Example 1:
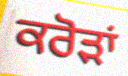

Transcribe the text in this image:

ਕਰੋਡ਼ਾਂ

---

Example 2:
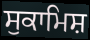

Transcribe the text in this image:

ਸੁਕਾਮਿਸ਼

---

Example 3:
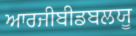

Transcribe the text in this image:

ਆਰਜੀਬੀਡਬਲਯੂ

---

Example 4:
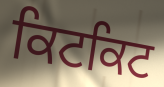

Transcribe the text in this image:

ਕਿਟਕਿਟ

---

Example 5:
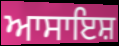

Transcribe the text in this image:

ਆਸਾਇਸ਼